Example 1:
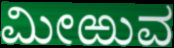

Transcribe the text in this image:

ಮೀಱುವ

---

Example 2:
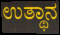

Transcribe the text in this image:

ಉತ್ಥಾನ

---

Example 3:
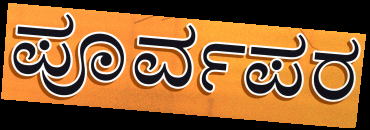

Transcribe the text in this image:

ಪೂರ್ವಪರ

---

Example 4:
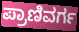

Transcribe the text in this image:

ಪ್ರಾಣಿವರ್ಗ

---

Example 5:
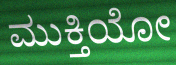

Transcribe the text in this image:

ಮುಕ್ತಿಯೋ